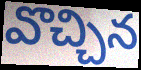
వొచ్చిన